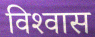
विश्‍वास